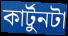
কার্টুনটা